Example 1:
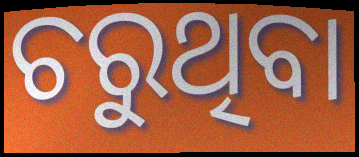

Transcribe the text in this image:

ଚରୁଥିବା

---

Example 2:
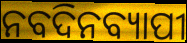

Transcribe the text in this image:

ନବଦିନବ୍ୟାପୀ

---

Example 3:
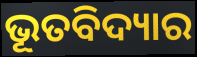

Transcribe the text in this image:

ଭୂତବିଦ୍ୟାର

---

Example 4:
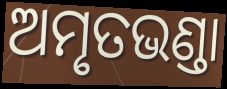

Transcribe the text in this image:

ଅମୃତଭଣ୍ଡା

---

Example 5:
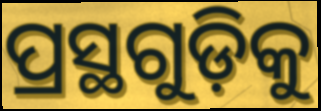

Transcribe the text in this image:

ପ୍ରସ୍ଥଗୁଡ଼ିକୁ